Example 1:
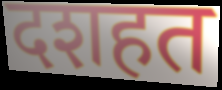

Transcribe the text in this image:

दशहत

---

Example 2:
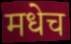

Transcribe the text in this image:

मधेच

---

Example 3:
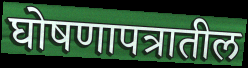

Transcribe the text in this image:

घोषणापत्रातील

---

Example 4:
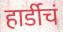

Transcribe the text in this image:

हार्डीचं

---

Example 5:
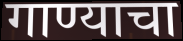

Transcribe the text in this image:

गाण्याचा